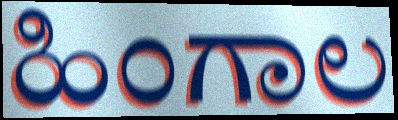
ಹಿಂಗಾಲ